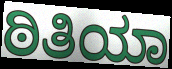
ಠಿತಿಯಾ